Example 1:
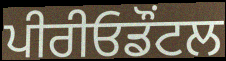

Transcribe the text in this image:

ਪੀਰੀਓਡੌਂਟਲ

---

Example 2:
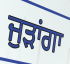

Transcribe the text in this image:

ਜੁੜਾਂਗਾ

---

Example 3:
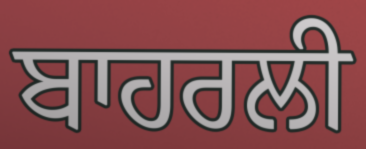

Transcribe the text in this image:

ਬਾਹਰਲੀ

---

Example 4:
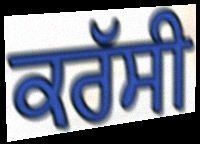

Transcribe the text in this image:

ਕਰੱਸੀ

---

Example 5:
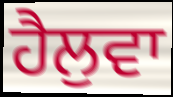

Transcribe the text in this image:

ਹੈਲੁਵਾ